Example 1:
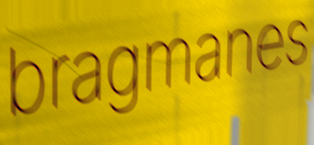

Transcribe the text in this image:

bragmanes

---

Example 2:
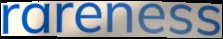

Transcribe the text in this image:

rareness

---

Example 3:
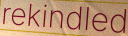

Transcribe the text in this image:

rekindled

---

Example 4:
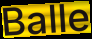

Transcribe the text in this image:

Balle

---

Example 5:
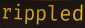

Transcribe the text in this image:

rippled